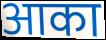
आका